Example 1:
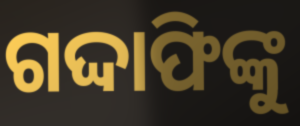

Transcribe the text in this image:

ଗଦ୍ଦାଫିଙ୍କୁ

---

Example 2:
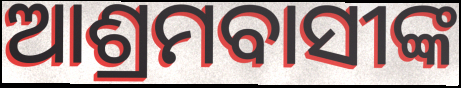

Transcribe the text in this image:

ଆଶ୍ରମବାସୀଙ୍କ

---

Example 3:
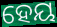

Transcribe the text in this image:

ହେୟ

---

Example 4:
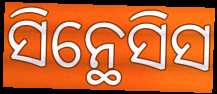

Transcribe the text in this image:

ସିନ୍ଥେସିସ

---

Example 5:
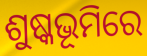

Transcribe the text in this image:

ଶୁଷ୍କଭୂମିରେ